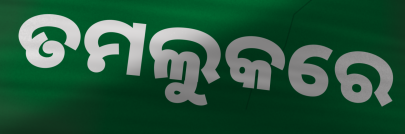
ତମଲୁକରେ